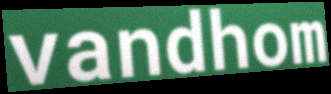
vandhom